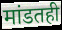
मांडतही